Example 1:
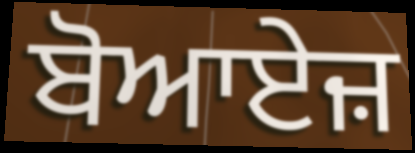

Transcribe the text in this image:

ਬੋਆਏਜ਼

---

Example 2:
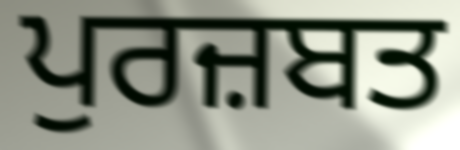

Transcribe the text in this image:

ਪੁਰਜ਼ਬਤ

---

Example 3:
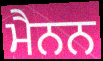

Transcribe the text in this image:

ਮੈਨਨ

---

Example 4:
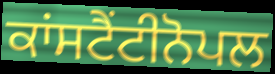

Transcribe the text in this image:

ਕਾਂਸਟੈਂਟੀਨੋਪਲ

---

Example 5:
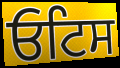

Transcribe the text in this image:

ਓਟਿਸ